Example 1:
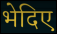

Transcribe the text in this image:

भेदिए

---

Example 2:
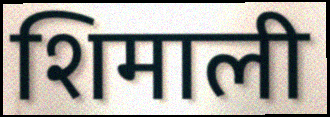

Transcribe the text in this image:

शिमाली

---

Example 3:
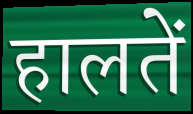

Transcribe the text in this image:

हालतें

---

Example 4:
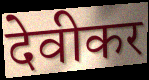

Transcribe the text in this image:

देवीकर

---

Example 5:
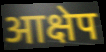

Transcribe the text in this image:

आक्षेप